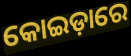
କୋଇଡ଼ାରେ